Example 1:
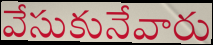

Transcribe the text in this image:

వేసుకునేవారు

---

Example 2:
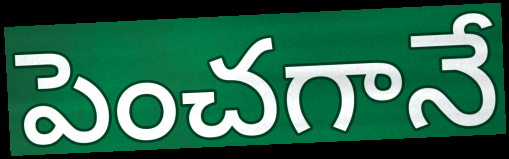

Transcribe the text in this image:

పెంచగానే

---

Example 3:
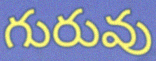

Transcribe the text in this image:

గురువు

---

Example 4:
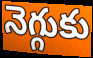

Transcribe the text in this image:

నెగ్గుకు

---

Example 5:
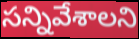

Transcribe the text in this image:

సన్నివేశాలని